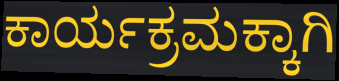
ಕಾರ್ಯಕ್ರಮಕ್ಕಾಗಿ